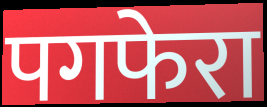
पगफेरा